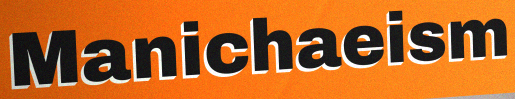
Manichaeism